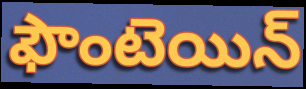
ఫౌంటెయిన్